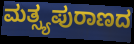
ಮತ್ಸ್ಯಪುರಾಣದ